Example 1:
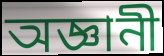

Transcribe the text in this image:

অজ্ঞানী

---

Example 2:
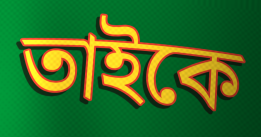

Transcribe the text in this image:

তাইকে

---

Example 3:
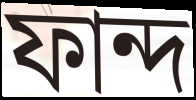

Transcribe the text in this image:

ফান্দ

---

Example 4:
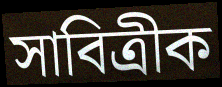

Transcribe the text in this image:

সাবিত্ৰীক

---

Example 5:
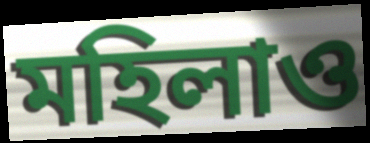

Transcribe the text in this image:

মহিলাও